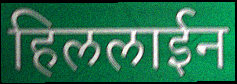
हिललाईन